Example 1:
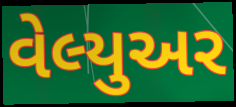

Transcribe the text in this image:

વેલ્યુઅર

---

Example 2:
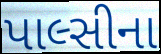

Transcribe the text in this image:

પાલ્સીના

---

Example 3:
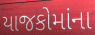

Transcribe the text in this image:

યાજકોમાંના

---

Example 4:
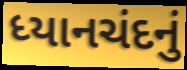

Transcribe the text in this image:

ધ્યાનચંદનું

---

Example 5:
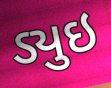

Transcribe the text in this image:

ડ્યુઇ